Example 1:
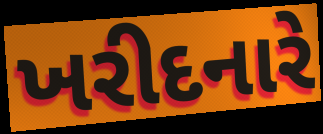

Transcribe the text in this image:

ખરીદનારે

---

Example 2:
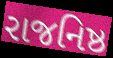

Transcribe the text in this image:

રાજનિષ્ઠ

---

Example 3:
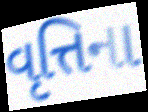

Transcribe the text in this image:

વૃત્તિના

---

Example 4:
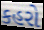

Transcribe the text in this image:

કહરો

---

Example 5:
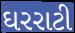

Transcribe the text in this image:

ઘરરાટી